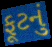
ફૂટનું